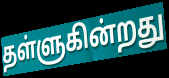
தள்ளுகின்றது